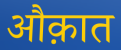
औक़ात